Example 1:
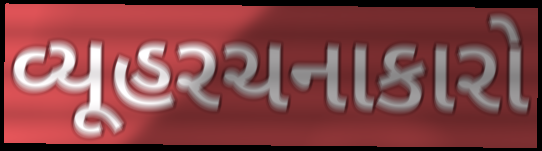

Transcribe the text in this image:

વ્યૂહરચનાકારો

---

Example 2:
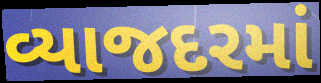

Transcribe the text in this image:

વ્યાજદરમાં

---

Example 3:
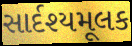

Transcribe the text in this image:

સાર્દશ્યમૂલક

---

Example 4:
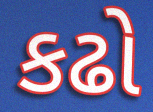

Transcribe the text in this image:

કઢો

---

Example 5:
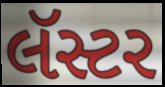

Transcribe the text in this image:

લૅસ્ટર